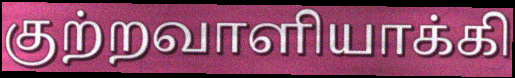
குற்றவாளியாக்கி